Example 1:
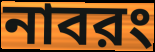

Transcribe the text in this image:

নাবরং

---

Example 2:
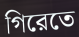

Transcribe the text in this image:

গিরেতে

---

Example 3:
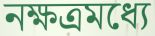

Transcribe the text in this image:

নক্ষত্রমধ্যে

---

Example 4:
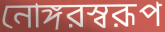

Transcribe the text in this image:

নোঙ্গরস্বরূপ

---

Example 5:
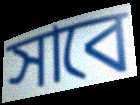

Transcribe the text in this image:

সাবে